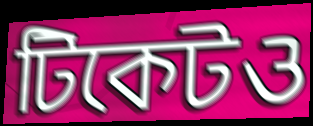
টিকেটও